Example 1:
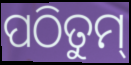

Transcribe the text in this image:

ପଠିତୁମ୍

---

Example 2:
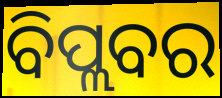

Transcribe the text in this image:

ବିପ୍ଲବର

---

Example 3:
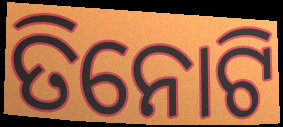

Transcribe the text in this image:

ତିନୋଟି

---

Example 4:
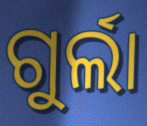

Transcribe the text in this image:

ଗୁର୍ଲା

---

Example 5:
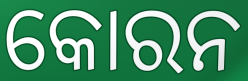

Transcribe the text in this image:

କୋରନ